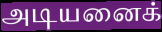
அடியனைக்